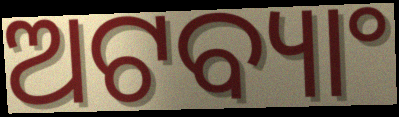
ଅଟବ୍ୟାଂ